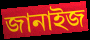
জানাইজ